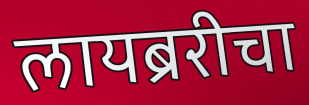
लायब्ररीचा